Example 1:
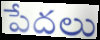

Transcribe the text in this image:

పేదలు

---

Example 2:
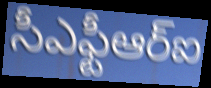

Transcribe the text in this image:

సీఎఫ్టీఆర్ఐ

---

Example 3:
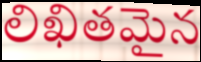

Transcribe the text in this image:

లిఖితమైన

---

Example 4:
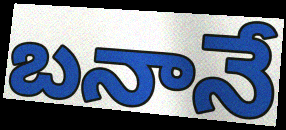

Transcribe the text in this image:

బనానే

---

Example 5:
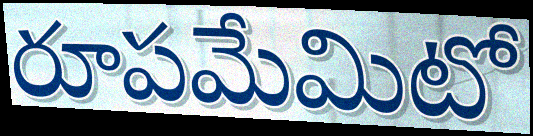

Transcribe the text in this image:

రూపమేమిటో